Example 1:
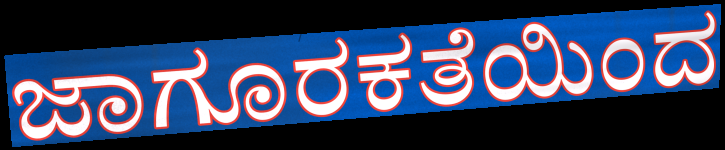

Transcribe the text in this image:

ಜಾಗೂರಕತೆಯಿಂದ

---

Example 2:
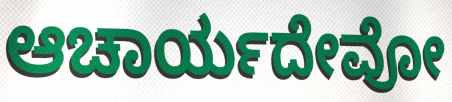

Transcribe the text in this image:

ಆಚಾರ್ಯದೇವೋ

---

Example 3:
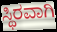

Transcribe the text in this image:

ಸ್ಥಿರವಾಗಿ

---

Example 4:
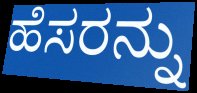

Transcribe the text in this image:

ಹೆಸರನ್ನು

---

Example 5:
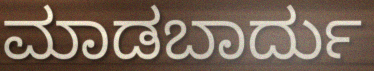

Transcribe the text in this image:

ಮಾಡಬಾರ್ದು